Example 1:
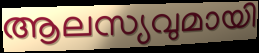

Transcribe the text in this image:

ആലസ്യവുമായി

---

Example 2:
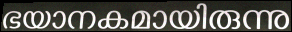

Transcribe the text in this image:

ഭയാനകമായിരുന്നു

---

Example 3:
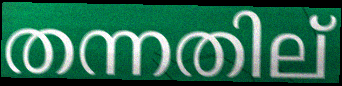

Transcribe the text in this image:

തന്നതില്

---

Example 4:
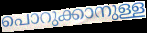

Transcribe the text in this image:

പൊറുക്കാനുള്ള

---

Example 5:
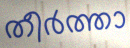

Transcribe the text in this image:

തീർത്താ